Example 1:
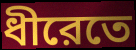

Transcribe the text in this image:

ধীরেতে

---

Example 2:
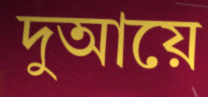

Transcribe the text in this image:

দুআয়ে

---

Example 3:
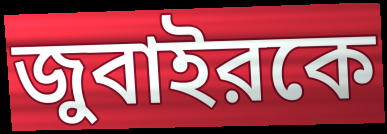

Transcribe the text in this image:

জুবাইরকে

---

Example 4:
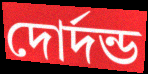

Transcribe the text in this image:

দোর্দন্ড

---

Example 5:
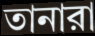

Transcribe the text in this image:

তানারা